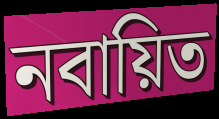
নবায়িত